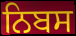
ਨਿਬਸ